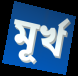
মূর্খ